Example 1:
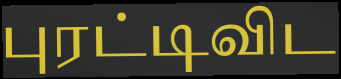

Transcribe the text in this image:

புரட்டிவிட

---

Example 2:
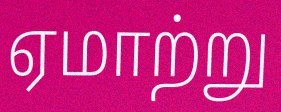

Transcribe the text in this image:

ஏமாற்று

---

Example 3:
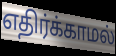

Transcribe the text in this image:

எதிர்க்காமல்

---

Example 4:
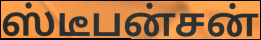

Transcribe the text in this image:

ஸ்டீபன்சன்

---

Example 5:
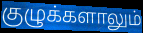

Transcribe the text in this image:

குழுக்களாலும்